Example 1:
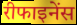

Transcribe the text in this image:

रीफाइनेंस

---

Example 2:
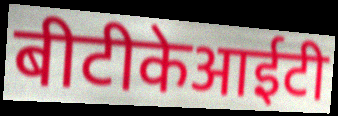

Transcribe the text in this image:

बीटीकेआईटी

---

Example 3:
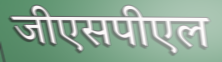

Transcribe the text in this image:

जीएसपीएल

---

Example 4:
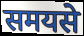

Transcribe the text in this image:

समयसे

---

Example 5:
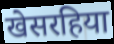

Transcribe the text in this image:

खेसरहिया